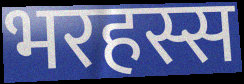
भरहस्स